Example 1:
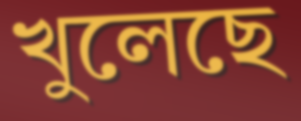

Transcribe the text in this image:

খুলেছে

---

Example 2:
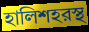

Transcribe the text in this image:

হালিশহরস্থ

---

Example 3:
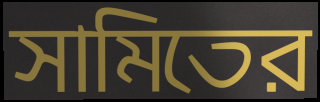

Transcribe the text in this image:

সামিতের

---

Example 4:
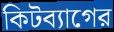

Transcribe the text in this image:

কিটব্যাগের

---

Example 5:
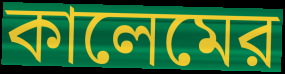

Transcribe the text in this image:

কালেমের